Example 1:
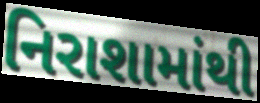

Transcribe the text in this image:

નિરાશામાંથી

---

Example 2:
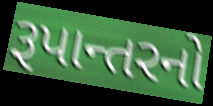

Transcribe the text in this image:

રૂપાન્તરનો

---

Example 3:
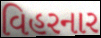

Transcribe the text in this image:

વિહરનાર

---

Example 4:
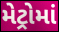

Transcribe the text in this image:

મેટ્રોમાં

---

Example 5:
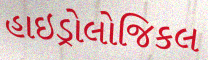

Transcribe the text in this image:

હાઇડ્રોલોજિકલ